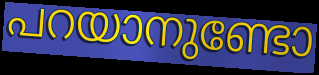
പറയാനുണ്ടോ